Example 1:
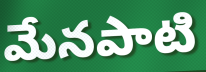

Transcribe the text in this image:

మేనపాటి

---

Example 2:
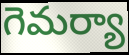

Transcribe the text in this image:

గెమర్యా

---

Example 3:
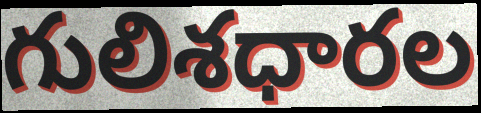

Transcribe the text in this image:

గులిశధారల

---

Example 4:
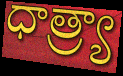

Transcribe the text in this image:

ధాత్ర్యా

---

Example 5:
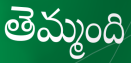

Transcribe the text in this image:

తెమ్మంది